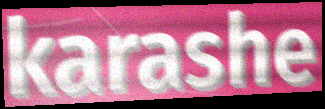
karashe